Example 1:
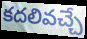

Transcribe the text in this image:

కదలివచ్చే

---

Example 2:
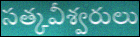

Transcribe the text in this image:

సత్కవీశ్వరులు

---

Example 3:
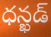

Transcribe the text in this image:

ధన్ఖడ్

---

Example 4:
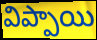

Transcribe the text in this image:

విప్పాయి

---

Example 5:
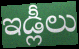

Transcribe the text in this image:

ఇడ్లీలు